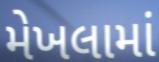
મેખલામાં